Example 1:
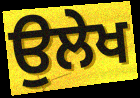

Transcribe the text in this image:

ਉਲੇਖ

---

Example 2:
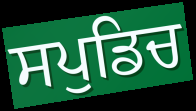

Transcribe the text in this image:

ਸਪੁਡਿਚ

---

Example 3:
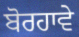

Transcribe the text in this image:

ਬੋਰਹਾਵੇ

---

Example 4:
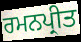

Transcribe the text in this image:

ਰਮਨਪ੍ਰੀਤ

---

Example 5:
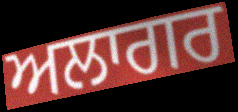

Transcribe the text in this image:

ਅਲਾਗਰ